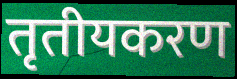
तृतीयकरण